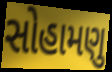
સોહામણુ